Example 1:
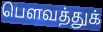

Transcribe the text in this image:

பௌவத்துக்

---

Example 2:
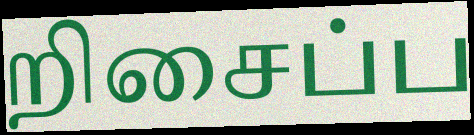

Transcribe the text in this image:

றிசைப்ப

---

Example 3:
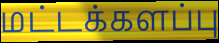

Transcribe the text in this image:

மட்டக்களப்பு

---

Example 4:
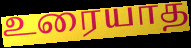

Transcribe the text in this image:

உரையாத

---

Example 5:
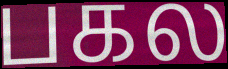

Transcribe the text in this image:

பகல